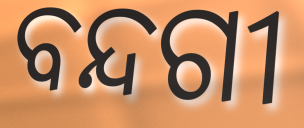
ବନ୍ଦଗୀ